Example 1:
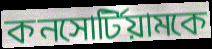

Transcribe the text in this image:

কনসোর্টিয়ামকে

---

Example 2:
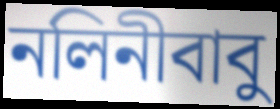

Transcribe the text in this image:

নলিনীবাবু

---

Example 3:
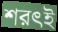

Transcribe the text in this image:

শরৎই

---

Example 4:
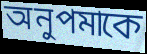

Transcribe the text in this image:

অনুপমাকে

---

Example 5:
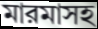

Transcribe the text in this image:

মারমাসহ